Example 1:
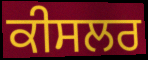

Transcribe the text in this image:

ਕੀਸਲਰ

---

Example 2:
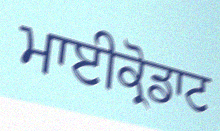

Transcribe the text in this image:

ਮਾਈਕ੍ਰੋਡਾਟ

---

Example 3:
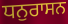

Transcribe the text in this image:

ਧਨੁਰਾਸਨ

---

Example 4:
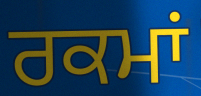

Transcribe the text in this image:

ਰਕਮਾਂ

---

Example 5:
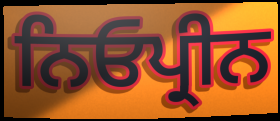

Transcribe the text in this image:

ਨਿਓਪ੍ਰੀਨ